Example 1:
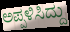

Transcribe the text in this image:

ಅಪ್ಪಳಿಸಿದ್ದು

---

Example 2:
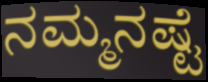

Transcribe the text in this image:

ನಮ್ಮನಷ್ಟೆ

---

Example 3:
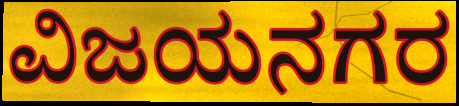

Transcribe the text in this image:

ವಿಜಯನಗರ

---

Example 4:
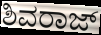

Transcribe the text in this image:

ಶಿವರಾಜ್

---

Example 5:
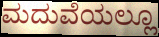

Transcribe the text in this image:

ಮದುವೆಯಲ್ಲೂ